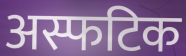
अस्फटिक